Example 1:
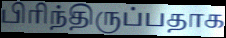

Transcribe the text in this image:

பிரிந்திருப்பதாக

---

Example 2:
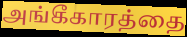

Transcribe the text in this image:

அங்கீகாரத்தை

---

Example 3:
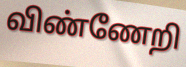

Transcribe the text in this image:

விண்ணேறி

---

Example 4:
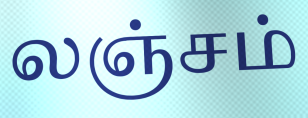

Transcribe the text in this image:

லஞ்சம்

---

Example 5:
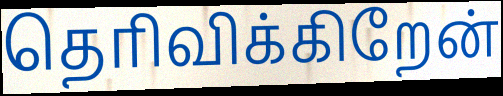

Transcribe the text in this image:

தெரிவிக்கிறேன்